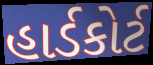
હાર્ડકોર્ટ